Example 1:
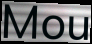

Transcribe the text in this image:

Mou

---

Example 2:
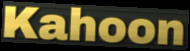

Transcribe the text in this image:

Kahoon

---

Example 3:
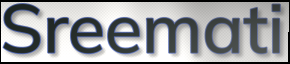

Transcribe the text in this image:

Sreemati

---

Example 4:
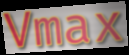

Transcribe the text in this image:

Vmax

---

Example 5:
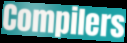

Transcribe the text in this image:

Compilers